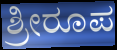
ಶ್ರೀರೂಪ